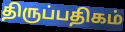
திருப்பதிகம்